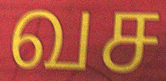
வச